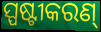
ସ୍ପଷ୍ଟୀକରଣ୍